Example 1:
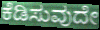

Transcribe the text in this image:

ಕೆಡಿಸುವುದೇ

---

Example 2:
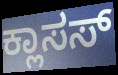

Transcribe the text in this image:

ಕ್ಲಾಸಸ್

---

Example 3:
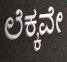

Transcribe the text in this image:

ಲೆಕ್ಕವೇ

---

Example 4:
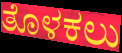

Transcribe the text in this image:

ತೊಳಕಲು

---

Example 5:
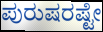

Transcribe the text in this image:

ಪುರುಷರಷ್ಟೇ